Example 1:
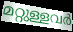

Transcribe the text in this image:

മറ്റുള്ളവർ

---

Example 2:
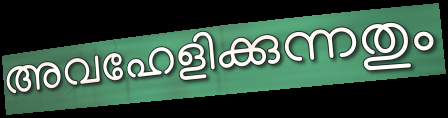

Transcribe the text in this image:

അവഹേളിക്കുന്നതും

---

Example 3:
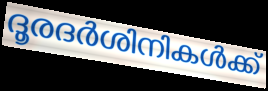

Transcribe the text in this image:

ദൂരദർശിനികൾക്ക്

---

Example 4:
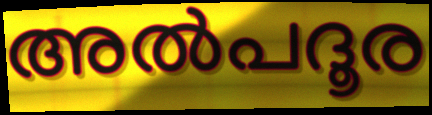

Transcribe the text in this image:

അൽപദൂര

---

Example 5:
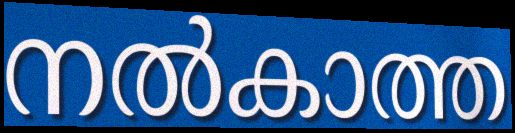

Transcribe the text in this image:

നൽകാത്ത